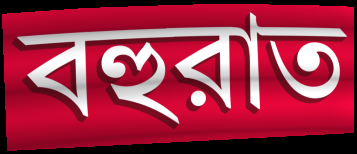
বহুরাত